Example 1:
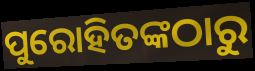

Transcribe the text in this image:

ପୁରୋହିତଙ୍କଠାରୁ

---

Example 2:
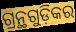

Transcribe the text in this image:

ଗ୍ରନ୍ଥଗୁଡ଼ିକର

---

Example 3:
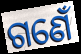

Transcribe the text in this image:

ଗଣେଁ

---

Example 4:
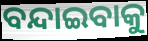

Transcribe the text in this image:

ବନ୍ଦାଇବାକୁ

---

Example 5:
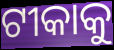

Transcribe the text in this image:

ଟୀକାକୁ